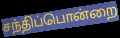
சந்திப்பொன்றை